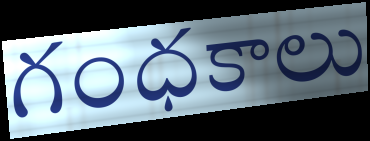
గంధకాలు